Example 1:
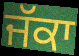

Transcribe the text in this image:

ਜੱਕਾ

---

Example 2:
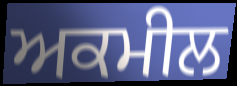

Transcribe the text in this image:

ਅਕਮੀਲ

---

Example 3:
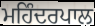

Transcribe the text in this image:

ਮਹਿੰਦਰਪਾਲ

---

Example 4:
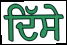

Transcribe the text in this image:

ਦਿੱਸੇ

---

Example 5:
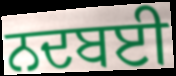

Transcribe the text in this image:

ਨਦਬਈ